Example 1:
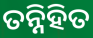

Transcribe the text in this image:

ତନ୍ନିହିତ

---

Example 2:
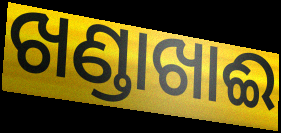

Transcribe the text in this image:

ଖଣ୍ଡାଖାଈ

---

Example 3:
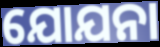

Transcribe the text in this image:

ଯୋଯନା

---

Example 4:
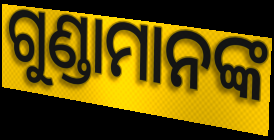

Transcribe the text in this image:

ଗୁଣ୍ଡାମାନଙ୍କ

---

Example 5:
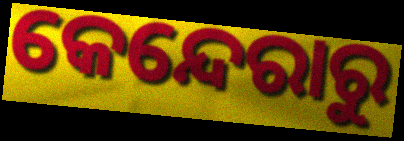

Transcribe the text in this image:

କେନ୍ଦେରାରୁ